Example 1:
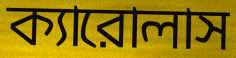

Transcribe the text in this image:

ক্যারোলাস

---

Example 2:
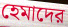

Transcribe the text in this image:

হেমাদের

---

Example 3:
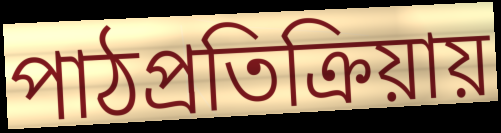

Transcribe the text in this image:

পাঠপ্রতিক্রিয়ায়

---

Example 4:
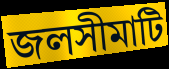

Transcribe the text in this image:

জলসীমাটি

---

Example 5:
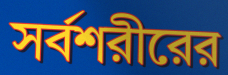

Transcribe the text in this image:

সর্বশরীরের